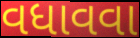
વધાવવા